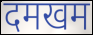
दमखम